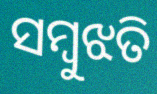
ସମ୍ବୁଝତି